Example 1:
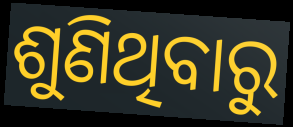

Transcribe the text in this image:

ଶୁଣିଥିବାରୁ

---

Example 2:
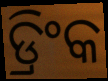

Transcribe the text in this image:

ଡ୍ରିଂକ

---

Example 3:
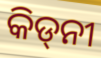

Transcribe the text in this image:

କିଡ୍‌ନୀ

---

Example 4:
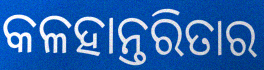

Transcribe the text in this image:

କଳହାନ୍ତରିତାର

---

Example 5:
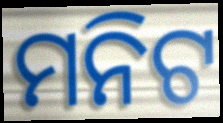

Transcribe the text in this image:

ମନିଟ